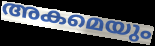
അകമെയും